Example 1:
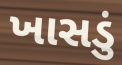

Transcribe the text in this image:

ખાસડું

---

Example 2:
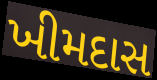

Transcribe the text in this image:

ખીમદાસ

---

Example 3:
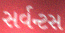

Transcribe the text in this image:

સર્વન્ટસ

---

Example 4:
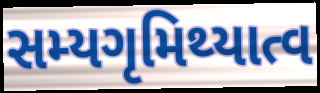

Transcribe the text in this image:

સમ્યગૃમિથ્યાત્વ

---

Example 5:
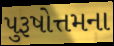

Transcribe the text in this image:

પુરૂષોત્તમના